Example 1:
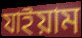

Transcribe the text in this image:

যাইয়াম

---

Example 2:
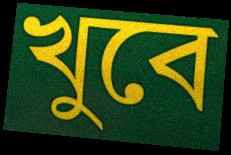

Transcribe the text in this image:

খুবে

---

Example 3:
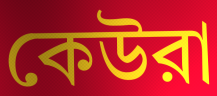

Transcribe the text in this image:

কেউরা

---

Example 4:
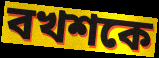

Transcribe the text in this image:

বখশকে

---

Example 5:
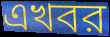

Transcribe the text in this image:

এখবর